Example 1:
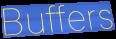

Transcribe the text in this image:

Buffers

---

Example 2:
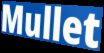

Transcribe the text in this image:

Mullet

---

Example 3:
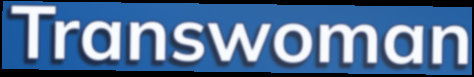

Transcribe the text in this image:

Transwoman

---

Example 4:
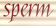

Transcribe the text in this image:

sperm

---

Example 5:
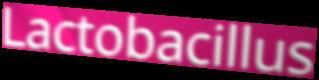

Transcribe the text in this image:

Lactobacillus